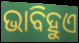
ଭାବିହୁଏ